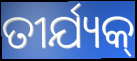
ତୀର୍ଯ୍ୟକ୍